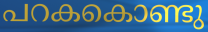
പറകകൊണ്ടു